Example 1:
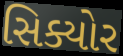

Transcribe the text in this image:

સિક્યોર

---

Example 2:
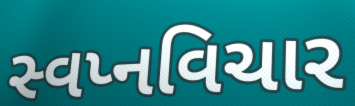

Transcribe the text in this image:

સ્વપ્નવિચાર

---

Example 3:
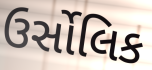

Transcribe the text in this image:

ઉર્સોલિક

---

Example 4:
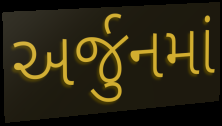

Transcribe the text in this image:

અર્જુનમાં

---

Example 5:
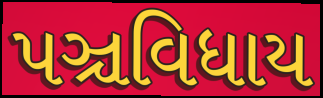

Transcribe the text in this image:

પઞ્ચવિધાય